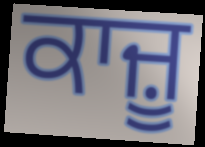
ਕਾਜ਼ੂ